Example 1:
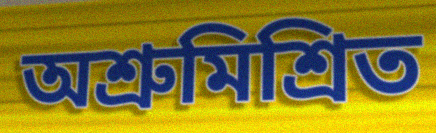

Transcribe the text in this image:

অশ্রুমিশ্রিত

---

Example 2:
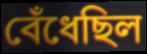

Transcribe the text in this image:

বেঁধেছিল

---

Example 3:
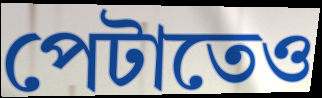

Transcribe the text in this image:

পেটাতেও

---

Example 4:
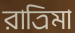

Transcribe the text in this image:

রাত্রিমা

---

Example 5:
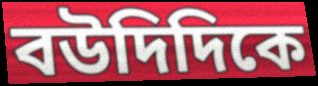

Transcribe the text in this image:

বউদিদিকে